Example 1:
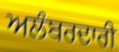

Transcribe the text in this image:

ਅਲੰਬਰਦਾਰੀ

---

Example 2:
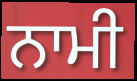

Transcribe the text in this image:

ਨਾਮੀ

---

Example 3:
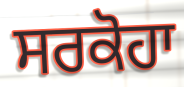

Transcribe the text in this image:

ਸਰਕੋਹਾ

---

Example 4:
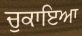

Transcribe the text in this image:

ਚੁਕਾਇਆ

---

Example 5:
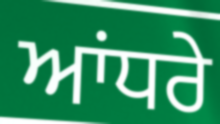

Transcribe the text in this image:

ਆਂਧਰੇ